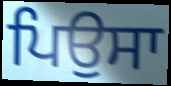
ਪਿਉਸਾ